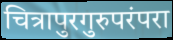
चित्रापुरगुरुपरंपरा